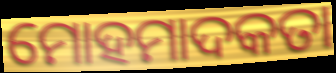
ମୋହମାଦକତା